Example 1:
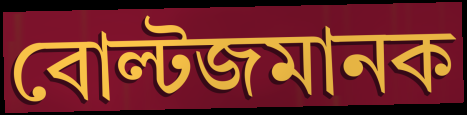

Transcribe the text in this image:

বোল্টজমানক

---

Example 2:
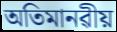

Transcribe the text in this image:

অতিমানৱীয়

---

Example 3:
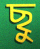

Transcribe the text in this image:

ছু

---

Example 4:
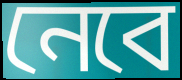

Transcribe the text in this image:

নেবে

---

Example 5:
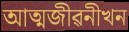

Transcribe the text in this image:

আত্মজীৱনীখন